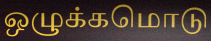
ஒழுக்கமொடு